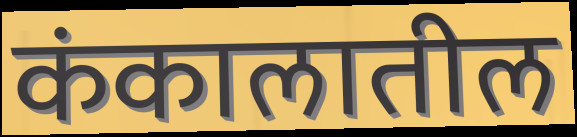
कंकालातील